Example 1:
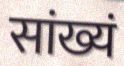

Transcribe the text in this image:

सांख्यं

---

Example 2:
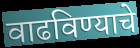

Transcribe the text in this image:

वाढविण्याचे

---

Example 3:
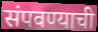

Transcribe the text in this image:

संपवण्याची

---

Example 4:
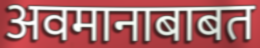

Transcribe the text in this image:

अवमानाबाबत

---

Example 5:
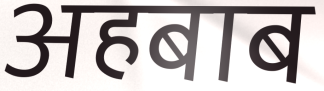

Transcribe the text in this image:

अहबाब